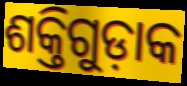
ଶକ୍ତିଗୁଡ଼ାକ